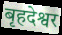
बृहदेश्वर